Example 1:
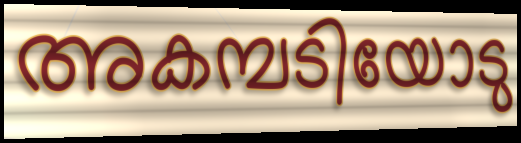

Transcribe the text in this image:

അകമ്പടിയോടു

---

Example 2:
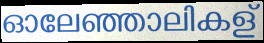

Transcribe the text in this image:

ഓലേഞ്ഞാലികള്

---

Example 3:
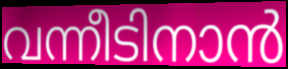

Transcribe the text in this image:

വന്നീടിനാൻ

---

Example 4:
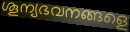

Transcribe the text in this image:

ശൂന്യഭവനങ്ങളെ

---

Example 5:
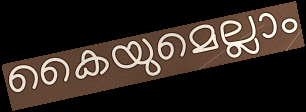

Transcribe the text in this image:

കൈയുമെല്ലാം